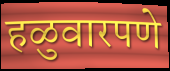
हळुवारपणे